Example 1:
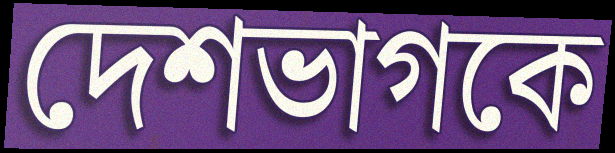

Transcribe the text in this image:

দেশভাগকে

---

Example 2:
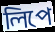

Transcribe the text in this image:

লিপে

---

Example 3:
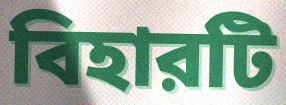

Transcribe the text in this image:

বিহারটি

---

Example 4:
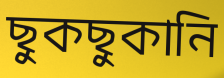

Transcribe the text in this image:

ছুকছুকানি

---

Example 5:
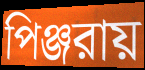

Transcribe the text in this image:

পিঞ্জরায়